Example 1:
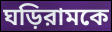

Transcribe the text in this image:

ঘড়িরামকে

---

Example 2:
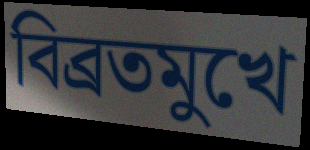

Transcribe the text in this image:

বিব্রতমুখে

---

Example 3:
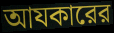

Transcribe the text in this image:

আযকারের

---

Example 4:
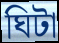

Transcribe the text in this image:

ঘিটা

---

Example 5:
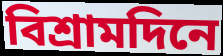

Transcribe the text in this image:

বিশ্রামদিনে